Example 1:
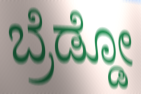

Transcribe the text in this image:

ಬ್ರೆಡ್ಡೋ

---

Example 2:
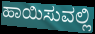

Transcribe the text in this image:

ಹಾಯಿಸುವಲ್ಲಿ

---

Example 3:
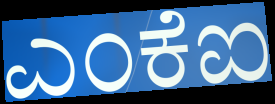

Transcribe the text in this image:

ಎಂಕೆಐ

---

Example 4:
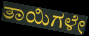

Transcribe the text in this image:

ತಾಯಿಗಳೇ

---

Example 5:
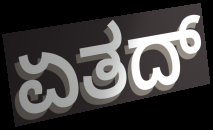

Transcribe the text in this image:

ಏತದ್